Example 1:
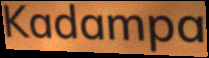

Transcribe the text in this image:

Kadampa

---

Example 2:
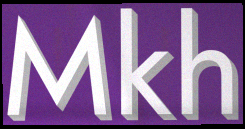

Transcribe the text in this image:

Mkh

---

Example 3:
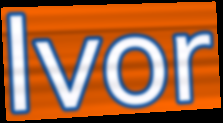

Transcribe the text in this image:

Ivor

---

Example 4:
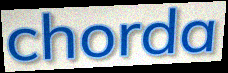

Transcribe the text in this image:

chorda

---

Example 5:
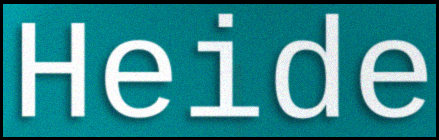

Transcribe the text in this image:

Heide